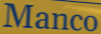
Manco